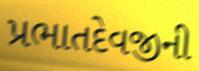
પ્રભાતદેવજીની